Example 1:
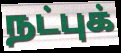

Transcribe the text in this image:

நட்புக்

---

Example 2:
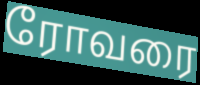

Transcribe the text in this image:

ரோவரை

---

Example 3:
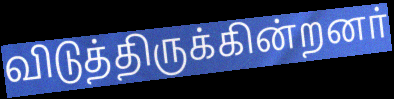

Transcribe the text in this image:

விடுத்திருக்கின்றனர்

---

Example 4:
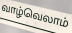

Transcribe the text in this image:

வாழ்வெலாம்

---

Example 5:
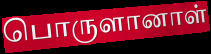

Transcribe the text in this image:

பொருளானாள்